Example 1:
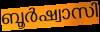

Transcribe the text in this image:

ബൂർഷ്വാസി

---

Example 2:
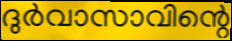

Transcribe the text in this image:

ദുർവാസാവിന്റെ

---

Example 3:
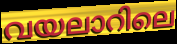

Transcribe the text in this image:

വയലാറിലെ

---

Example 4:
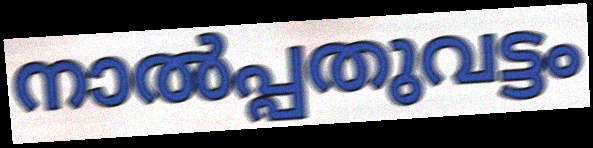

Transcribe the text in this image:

നാൽപ്പതുവട്ടം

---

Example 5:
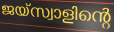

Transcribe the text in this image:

ജയ്സ്വാളിന്റെ